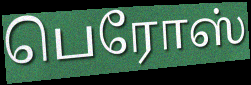
பெரோஸ்